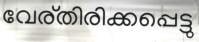
വേര്തിരിക്കപ്പെട്ടു